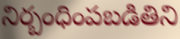
నిర్బంధింపబడితిని